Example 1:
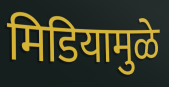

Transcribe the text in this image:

मिडियामुळे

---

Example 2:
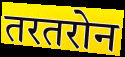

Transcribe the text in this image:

तरतरोन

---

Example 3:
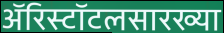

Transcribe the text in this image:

ॲरिस्टॉटलसारख्या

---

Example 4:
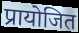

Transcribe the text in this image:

प्रायोजित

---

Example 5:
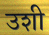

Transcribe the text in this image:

उशी